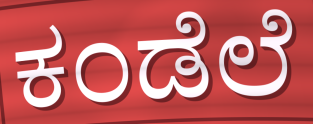
ಕಂಡೆಲೆ